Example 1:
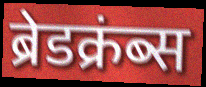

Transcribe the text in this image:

ब्रेडक्रंब्स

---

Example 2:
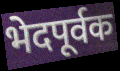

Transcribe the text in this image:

भेदपूर्वक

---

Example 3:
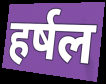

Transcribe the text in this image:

हर्षल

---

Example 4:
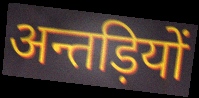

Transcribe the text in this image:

अन्तड़ियों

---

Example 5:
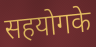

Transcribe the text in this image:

सहयोगके